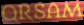
QRSAM